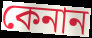
কেনান